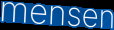
mensen